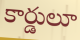
కార్డులూ